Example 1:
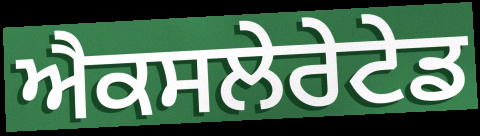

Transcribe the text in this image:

ਐਕਸਲੇਰੇਟੇਡ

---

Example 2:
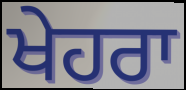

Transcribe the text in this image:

ਖੇਹਰਾ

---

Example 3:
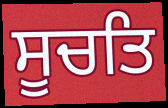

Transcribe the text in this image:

ਸੂਚਤਿ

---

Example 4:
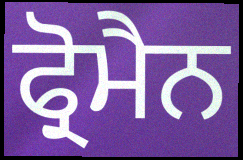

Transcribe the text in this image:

ਫ੍ਰੋਮੈਨ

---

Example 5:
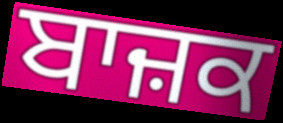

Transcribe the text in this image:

ਬਾਜ਼ਕ